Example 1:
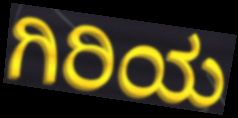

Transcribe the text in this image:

ಗಿರಿಯ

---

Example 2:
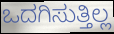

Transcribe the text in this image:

ಒದಗಿಸುತ್ತಿಲ್ಲ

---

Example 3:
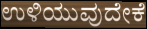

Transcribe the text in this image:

ಉಳಿಯುವುದೇಕೆ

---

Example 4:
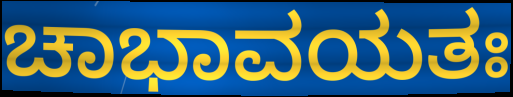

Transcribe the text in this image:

ಚಾಭಾವಯತಃ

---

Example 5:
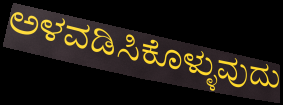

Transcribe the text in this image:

ಅಳವಡಿಸಿಕೊಳ್ಳುವುದು